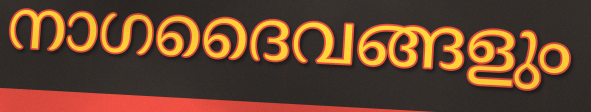
നാഗദൈവങ്ങളും